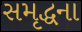
સમૃદ્ધના